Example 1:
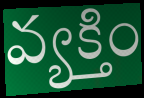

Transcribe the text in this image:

వ్యక్తిం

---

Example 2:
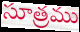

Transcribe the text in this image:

సూత్రము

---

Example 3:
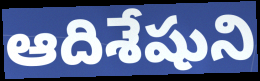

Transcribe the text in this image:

ఆదిశేషుని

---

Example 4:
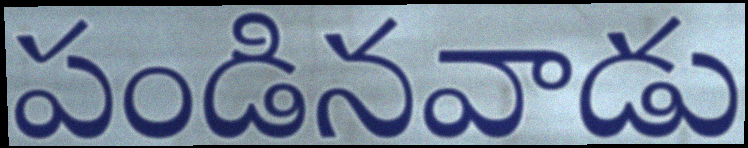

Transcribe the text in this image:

పండినవాడు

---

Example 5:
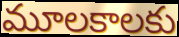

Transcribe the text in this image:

మూలకాలకు